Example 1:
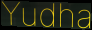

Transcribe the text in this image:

Yudha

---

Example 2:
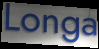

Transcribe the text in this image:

Longa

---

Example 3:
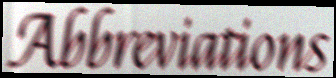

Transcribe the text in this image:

Abbreviations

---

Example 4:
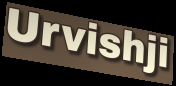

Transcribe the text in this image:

Urvishji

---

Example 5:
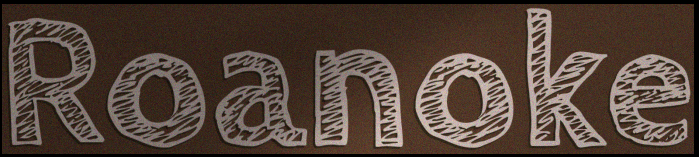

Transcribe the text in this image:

Roanoke